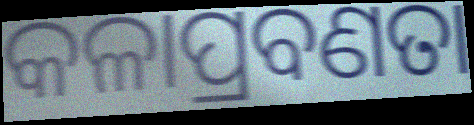
କଳାପ୍ରବଣତା